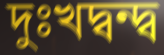
দুঃখদ্বন্দ্ব